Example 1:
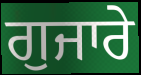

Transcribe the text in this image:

ਗੁਜਾਰੇ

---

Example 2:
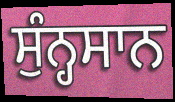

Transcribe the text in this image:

ਸੁੰਨ੍ਹਸਾਨ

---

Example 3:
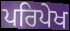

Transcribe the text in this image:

ਪਰਿਪੇਖ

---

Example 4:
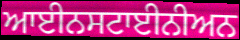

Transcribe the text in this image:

ਆਈਨਸਟਾਈਨੀਅਨ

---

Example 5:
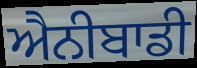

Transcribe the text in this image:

ਐਨੀਬਾਡੀ